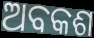
ଅବକଶ